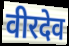
वीरदेव